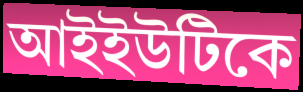
আইইউটিকে